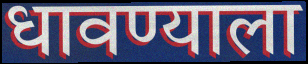
धावण्याला